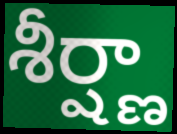
శీర్ష్ణా